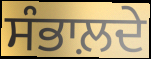
ਸੰਭਾਲ਼ਦੇ